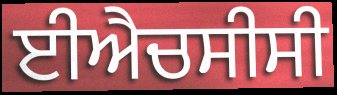
ਈਐਚਸੀਸੀ